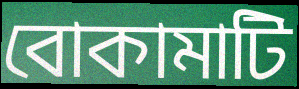
বোকামাটি